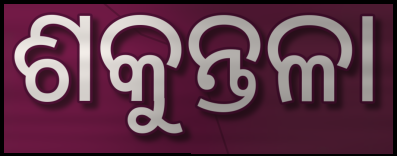
ଶକୁନ୍ତଳା